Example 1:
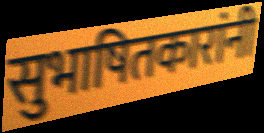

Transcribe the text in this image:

सुभाषितकारांनी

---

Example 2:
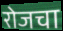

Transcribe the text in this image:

रोजचा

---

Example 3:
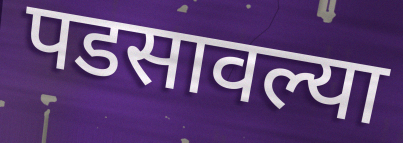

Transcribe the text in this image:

पडसावल्या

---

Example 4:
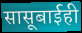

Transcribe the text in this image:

सासूबाईही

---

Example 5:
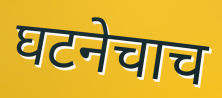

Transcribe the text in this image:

घटनेचाच